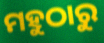
ମହୁଠାରୁ